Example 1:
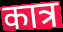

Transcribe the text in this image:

कात्र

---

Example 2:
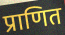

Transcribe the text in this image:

प्राणित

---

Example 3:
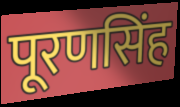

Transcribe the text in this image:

पूरणसिंह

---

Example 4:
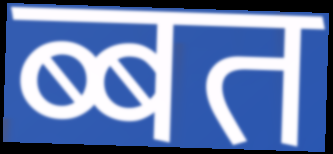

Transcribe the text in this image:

ब्बत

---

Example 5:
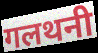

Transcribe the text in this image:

गलथनी